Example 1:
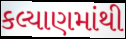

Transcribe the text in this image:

કલ્યાણમાંથી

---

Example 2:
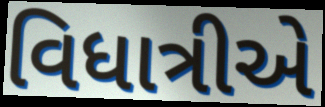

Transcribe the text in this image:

વિધાત્રીએ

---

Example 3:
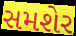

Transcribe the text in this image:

સમશેર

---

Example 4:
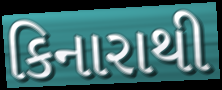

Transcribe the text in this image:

કિનારાથી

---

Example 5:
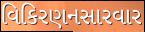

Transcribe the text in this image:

વિકિરણનસારવાર